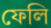
ফেলি